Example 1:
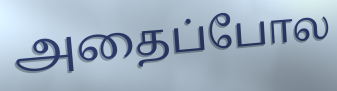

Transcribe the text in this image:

அதைப்போல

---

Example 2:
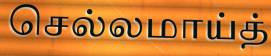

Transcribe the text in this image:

செல்லமாய்த்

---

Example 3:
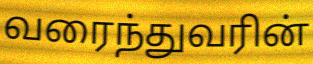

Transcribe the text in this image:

வரைந்துவரின்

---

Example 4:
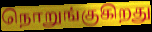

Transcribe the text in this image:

நொறுங்குகிறது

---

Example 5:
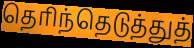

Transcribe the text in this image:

தெரிந்தெடுத்துத்